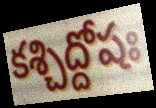
కశ్చిద్దోషః